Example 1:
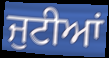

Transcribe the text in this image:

ਜੁਟੀਆਂ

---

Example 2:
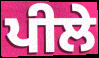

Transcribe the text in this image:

ਪੀਲੇ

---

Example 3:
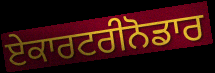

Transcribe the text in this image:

ਏਕਾਰਟਰੀਨੋਡਾਰ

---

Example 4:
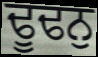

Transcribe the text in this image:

ਢੂਢਨੁ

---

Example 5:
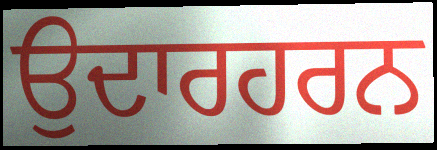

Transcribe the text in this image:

ਉਦਾਰਹਰਨ